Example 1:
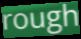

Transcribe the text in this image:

rough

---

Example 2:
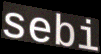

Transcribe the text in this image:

sebi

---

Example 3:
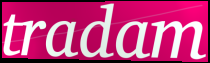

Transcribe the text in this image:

tradam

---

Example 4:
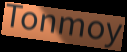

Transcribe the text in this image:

Tonmoy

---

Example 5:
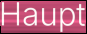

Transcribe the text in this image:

Haupt